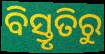
ବିସ୍ତୃତିରୁ